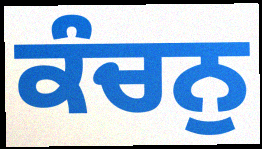
ਕੰਚਨੁ